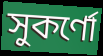
সুকৰ্ণো